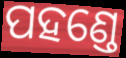
ପହଣ୍ଡେ